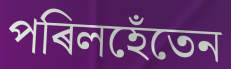
পৰিলহেঁতেন